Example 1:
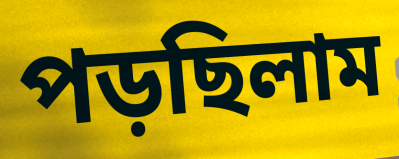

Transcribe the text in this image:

পড়ছিলাম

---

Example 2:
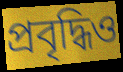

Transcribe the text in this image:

প্রবৃদ্ধিও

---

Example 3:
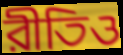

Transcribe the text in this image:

রীতিও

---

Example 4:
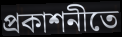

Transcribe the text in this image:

প্রকাশনীতে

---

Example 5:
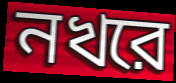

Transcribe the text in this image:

নখরে